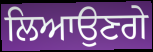
ਲਿਆਉਣਗੇ